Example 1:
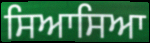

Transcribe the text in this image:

ਸਿਆਸਿਆ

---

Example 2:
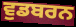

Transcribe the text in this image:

ਵੁਡਬਰਨ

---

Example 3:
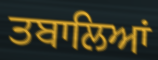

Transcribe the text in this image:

ਤਬਾਲਿਆਂ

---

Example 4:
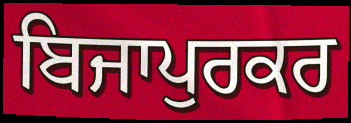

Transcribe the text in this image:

ਬਿਜਾਪੁਰਕਰ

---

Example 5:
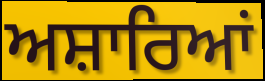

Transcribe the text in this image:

ਅਸ਼ਾਰਿਆਂ